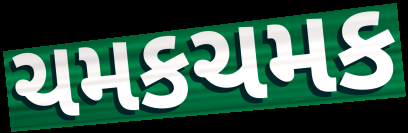
ચમકચમક